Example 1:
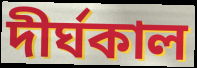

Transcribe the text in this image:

দীৰ্ঘকাল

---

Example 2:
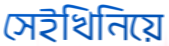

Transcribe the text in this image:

সেইখিনিয়ে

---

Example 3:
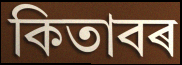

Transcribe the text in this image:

কিতাবৰ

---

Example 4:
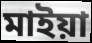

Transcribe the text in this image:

মাইয়া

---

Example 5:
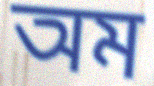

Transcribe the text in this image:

অম